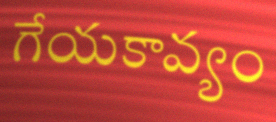
గేయకావ్యం